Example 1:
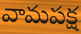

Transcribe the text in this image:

వామపక్ష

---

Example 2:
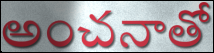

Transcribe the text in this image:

అంచనాతో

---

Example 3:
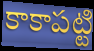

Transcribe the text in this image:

కాకాపట్టి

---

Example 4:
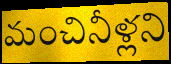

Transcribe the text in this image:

మంచినీళ్లని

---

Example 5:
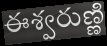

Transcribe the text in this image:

ఈశ్వరుణ్ణి